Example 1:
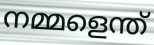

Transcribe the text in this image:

നമ്മളെന്ത്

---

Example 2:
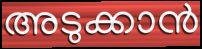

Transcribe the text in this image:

അടുക്കാൻ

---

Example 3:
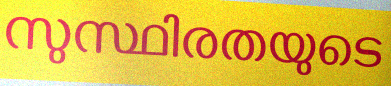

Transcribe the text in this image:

സുസ്ഥിരതയുടെ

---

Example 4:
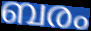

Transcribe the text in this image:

ബരം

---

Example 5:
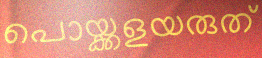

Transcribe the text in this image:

പൊയ്ക്കളയരുത്